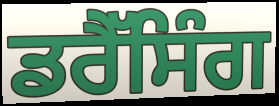
ਡਰੈੱਸਿੰਗ